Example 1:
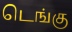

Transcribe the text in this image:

டெங்கு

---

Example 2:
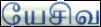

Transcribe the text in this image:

யேசிவ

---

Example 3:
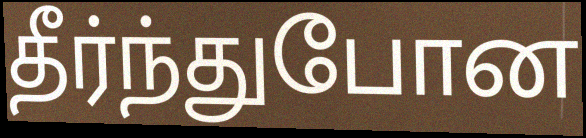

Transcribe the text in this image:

தீர்ந்துபோன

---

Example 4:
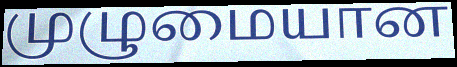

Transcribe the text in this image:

முழுமையான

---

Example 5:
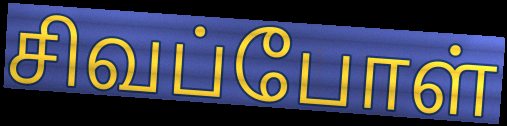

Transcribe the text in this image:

சிவப்போள்